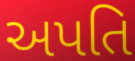
અપતિ